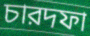
চারদফা